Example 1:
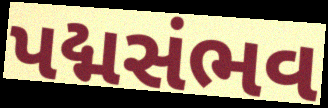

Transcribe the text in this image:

પદ્મસંભવ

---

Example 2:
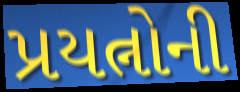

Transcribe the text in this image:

પ્રયત્નોની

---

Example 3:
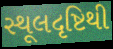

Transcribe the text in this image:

સ્થૂલદૃષ્ટિથી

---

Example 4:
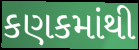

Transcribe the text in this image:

કણકમાંથી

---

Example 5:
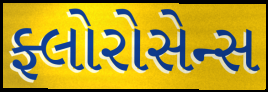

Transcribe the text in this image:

ફ્લોરોસેન્સ